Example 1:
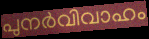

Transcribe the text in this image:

പുനർവിവാഹം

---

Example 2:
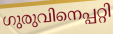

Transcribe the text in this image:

ഗുരുവിനെപ്പറ്റി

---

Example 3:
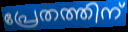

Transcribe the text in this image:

പ്രേതത്തിന്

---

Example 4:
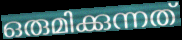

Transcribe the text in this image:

ഒരുമിക്കുന്നത്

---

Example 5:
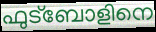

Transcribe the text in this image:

ഫുട്ബോളിനെ